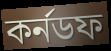
কর্নডফ